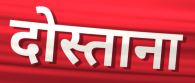
दोस्ताना